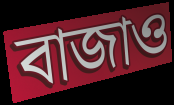
বাজাও